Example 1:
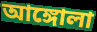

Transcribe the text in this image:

আঙ্গোলা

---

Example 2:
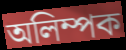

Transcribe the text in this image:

অলিম্পক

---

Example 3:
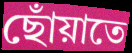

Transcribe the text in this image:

ছোঁয়াতে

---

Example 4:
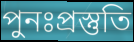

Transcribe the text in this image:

পুনঃপ্রস্তুতি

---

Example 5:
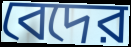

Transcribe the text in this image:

বেদের